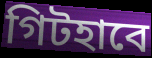
গিটহাবে